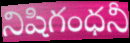
నిషిగంధనీ